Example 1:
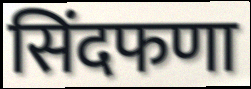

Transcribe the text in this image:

सिंदफणा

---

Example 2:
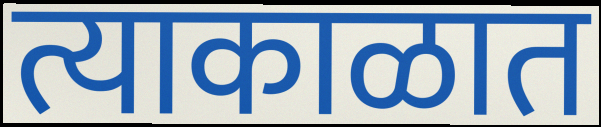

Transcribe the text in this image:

त्याकाळात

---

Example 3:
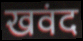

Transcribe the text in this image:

खवंद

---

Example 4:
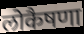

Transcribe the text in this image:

लोकैषणा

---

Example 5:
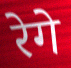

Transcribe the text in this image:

रेगे